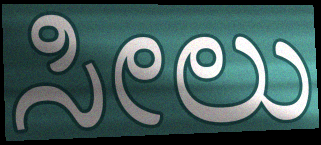
ಸೀಲು